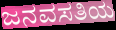
ಜನವಸತಿಯ